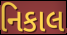
નિકાલ